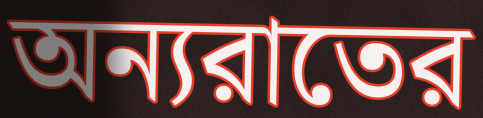
অন্যরাতের